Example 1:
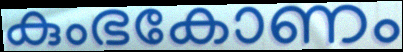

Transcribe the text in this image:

കുംഭകോണം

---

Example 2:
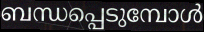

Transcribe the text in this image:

ബന്ധപ്പെടുമ്പോൾ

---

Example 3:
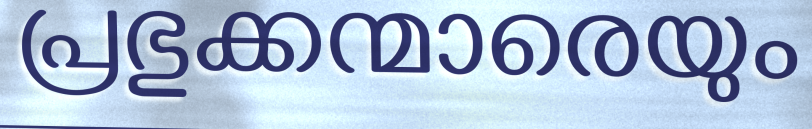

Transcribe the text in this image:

പ്രഭുക്കന്മാരെയും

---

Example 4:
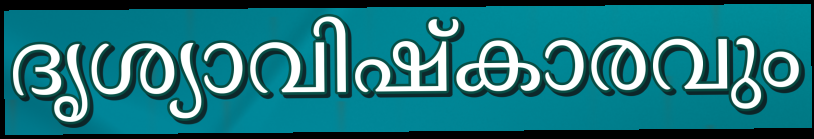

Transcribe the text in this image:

ദൃശ്യാവിഷ്കാരവും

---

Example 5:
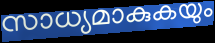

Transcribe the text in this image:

സാധ്യമാകുകയും